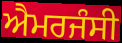
ਐਮਰਜੰਸੀ